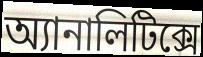
অ্যানালিটিক্সে